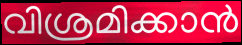
വിശ്രമിക്കാൻ